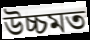
উচ্চমত